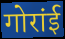
गोरांई